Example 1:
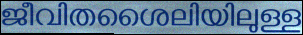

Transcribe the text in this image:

ജീവിതശൈലിയിലുള്ള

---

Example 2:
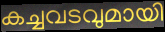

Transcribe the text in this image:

കച്ചവടവുമായി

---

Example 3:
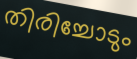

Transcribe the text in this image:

തിരിച്ചോടും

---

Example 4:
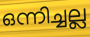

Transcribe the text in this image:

ഒന്നിച്ചല്ല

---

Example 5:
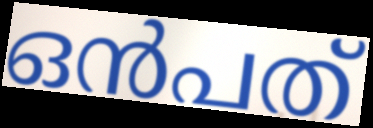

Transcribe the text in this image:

ഒൻപത്